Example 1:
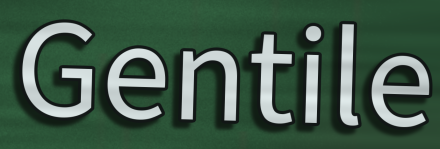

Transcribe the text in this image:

Gentile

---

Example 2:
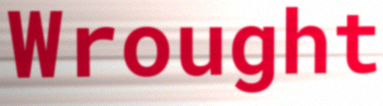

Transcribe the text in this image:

Wrought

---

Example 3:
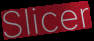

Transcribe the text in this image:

Slicer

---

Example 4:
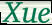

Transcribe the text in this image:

Xue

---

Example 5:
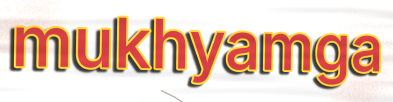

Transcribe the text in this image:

mukhyamga